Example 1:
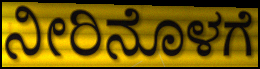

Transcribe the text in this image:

ನೀರಿನೊಳಗೆ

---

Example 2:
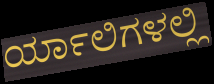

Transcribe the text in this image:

ರ್ಯಾಲಿಗಳಲ್ಲಿ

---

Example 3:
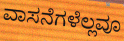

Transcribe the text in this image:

ವಾಸನೆಗಳೆಲ್ಲವೂ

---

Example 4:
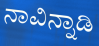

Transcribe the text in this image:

ನಾವಿನ್ನಾಡಿ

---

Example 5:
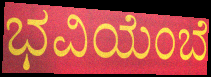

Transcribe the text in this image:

ಭವಿಯೆಂಬೆ